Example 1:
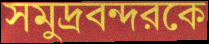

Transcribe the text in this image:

সমুদ্রবন্দরকে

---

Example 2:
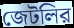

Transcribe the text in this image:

জেটলির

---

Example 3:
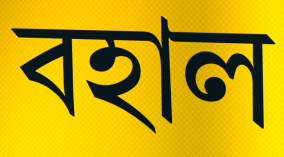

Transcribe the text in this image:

বহাল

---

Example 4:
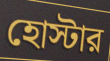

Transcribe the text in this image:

হোস্টার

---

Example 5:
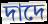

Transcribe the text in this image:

দাদে